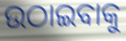
ଉଠାଇବାକୁ